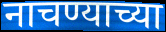
नाचण्याच्या